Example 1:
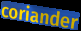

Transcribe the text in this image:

coriander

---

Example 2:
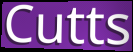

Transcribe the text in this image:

Cutts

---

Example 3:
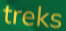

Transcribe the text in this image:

treks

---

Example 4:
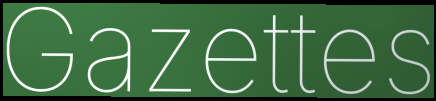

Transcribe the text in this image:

Gazettes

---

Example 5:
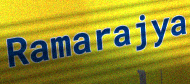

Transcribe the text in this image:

Ramarajya